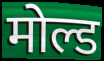
मोल्ड